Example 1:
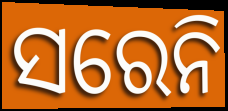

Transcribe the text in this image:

ସରେନି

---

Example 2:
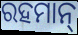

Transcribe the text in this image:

ରହମାନ୍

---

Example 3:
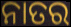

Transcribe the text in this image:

ନାତର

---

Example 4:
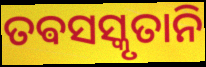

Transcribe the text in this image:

ତଵସସ୍କୃତାନି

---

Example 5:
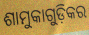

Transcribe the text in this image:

ଶାମୁକାଗୁଡ଼ିକର